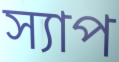
স্যাপ